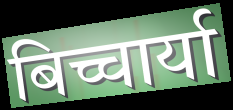
बिच्चार्या